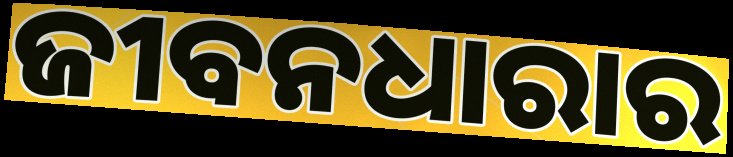
ଜୀବନଧାରାର